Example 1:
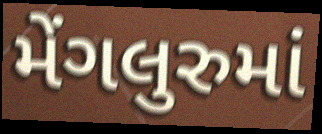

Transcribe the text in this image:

મેંગલુરુમાં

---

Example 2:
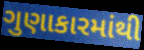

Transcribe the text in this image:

ગુણાકારમાંથી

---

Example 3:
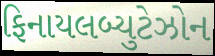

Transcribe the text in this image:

ફિનાયલબ્યુટેઝોન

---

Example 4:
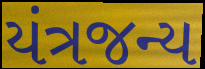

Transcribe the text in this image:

યંત્રજન્ય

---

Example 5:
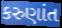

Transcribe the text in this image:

કરુણાંત